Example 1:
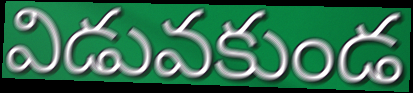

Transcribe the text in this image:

విడువకుండ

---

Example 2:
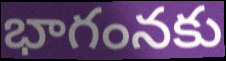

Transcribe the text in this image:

భాగంనకు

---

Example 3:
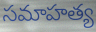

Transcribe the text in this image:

సమాహత్య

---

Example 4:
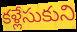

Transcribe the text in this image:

కళ్లేసుకుని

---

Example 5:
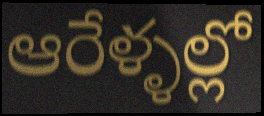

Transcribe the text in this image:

ఆరేళ్ళల్లో